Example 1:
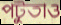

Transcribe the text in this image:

পটুতাও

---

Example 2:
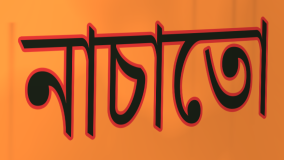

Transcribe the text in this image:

নাচাতো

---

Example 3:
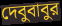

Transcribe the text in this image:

দেবুবাবুর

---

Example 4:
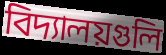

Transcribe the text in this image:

বিদ্যালয়গুলি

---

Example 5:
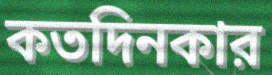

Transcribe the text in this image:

কতদিনকার